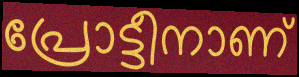
പ്രോട്ടീനാണ്